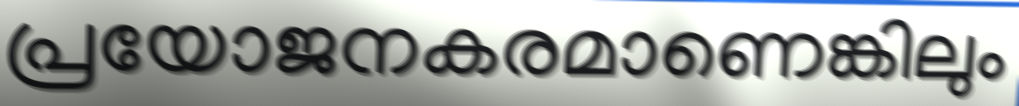
പ്രയോജനകരമാണെങ്കിലും